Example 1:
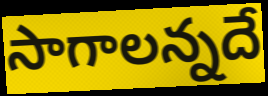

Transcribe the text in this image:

సాగాలన్నదే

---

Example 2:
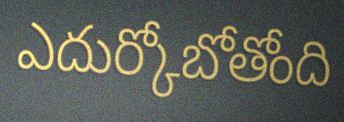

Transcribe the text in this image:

ఎదుర్కోబోతోంది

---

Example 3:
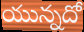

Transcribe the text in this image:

యున్నదో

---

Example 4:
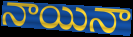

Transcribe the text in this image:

నాయినా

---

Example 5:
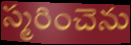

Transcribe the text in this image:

స్మరించెను